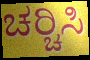
ಚರ‍್ಚಿಸಿ